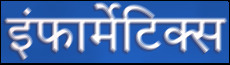
इंफार्मेटिक्स